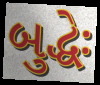
બુદ્ધેઃ